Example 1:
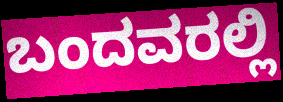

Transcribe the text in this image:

ಬಂದವರಲ್ಲಿ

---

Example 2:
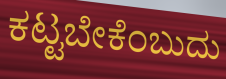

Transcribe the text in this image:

ಕಟ್ಟಬೇಕೆಂಬುದು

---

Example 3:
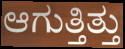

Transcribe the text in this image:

ಆಗುತ್ತಿತ್ತು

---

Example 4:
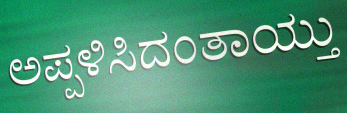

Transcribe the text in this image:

ಅಪ್ಪಳಿಸಿದಂತಾಯ್ತು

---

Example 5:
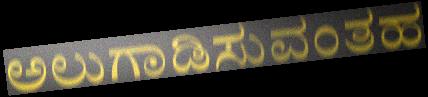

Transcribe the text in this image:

ಅಲುಗಾಡಿಸುವಂತಹ